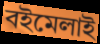
বইমেলাই